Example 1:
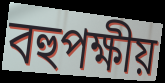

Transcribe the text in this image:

বহুপক্ষীয়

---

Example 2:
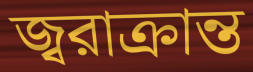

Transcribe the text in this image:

জ্বরাক্রান্ত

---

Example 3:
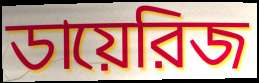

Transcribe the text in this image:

ডায়েরিজ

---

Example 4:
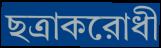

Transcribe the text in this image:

ছত্রাকরোধী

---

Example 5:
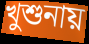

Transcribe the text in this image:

খুশুনায়